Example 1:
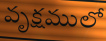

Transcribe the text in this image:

వృక్షములో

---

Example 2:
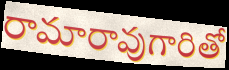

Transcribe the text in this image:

రామారావుగారితో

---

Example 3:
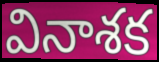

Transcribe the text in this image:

వినాశక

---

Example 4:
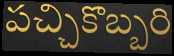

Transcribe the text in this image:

పచ్చికొబ్బరి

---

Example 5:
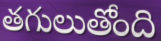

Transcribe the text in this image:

తగులుతోంది